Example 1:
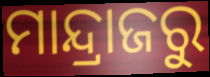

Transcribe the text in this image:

ମାନ୍ଦ୍ରାଜରୁ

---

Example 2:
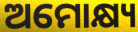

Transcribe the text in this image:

ଅମୋକ୍ଷ୍ୟ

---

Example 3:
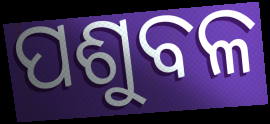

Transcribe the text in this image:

ପଶୁବଳ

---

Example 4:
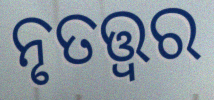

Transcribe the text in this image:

ନୃତତ୍ତ୍ୱର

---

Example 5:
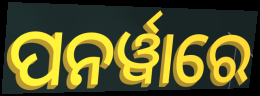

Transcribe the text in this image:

ପନର୍ୱାରେ